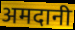
अमदानी